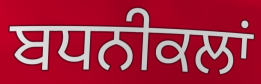
ਬਧਨੀਕਲਾਂ